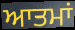
ਆਤਮਾਂ